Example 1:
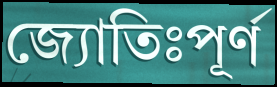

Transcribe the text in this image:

জ্যোতিঃপূর্ণ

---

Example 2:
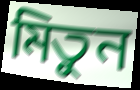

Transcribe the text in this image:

মিতুন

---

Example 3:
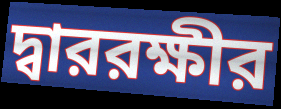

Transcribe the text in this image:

দ্বাররক্ষীর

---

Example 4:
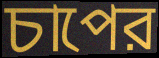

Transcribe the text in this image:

চাপের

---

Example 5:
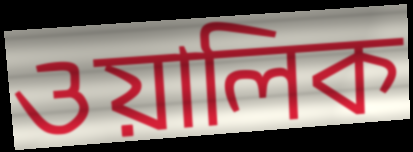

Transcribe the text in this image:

ওয়ালিক